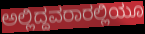
ಅಲ್ಲಿದ್ದವರಾರಲ್ಲಿಯೂ